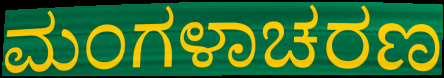
ಮಂಗಳಾಚರಣ